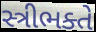
સ્ત્રીભક્તે